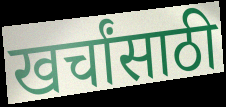
खर्चांसाठी